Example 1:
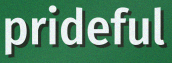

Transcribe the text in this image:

prideful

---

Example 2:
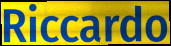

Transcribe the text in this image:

Riccardo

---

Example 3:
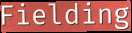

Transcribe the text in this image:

Fielding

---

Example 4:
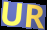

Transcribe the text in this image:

UR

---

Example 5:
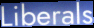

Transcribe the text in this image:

Liberals